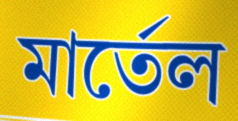
মার্তেল